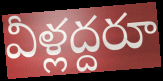
వీళ్లద్దరూ